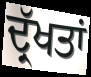
ਦ੍ਰੱਖਤਾਂ